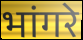
भांगरे